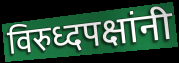
विरुध्दपक्षांनी